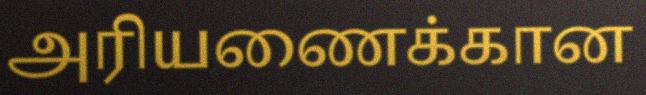
அரியணைக்கான